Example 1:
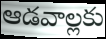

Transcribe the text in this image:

ఆడవాల్లకు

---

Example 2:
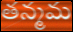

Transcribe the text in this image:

తన్మమ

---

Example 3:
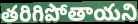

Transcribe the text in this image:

తరిగిపోతాయని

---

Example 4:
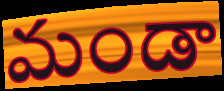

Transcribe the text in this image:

మండా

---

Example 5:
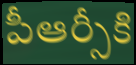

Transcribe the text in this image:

పీఆర్సీకి